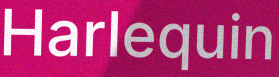
Harlequin